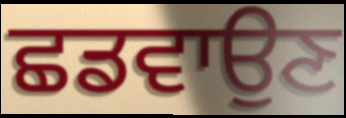
ਛਡਵਾਉਣ